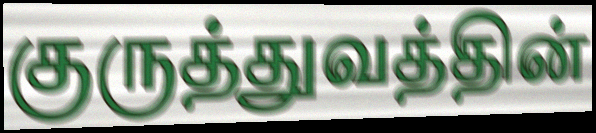
குருத்துவத்தின்